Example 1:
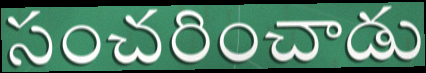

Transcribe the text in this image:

సంచరించాడు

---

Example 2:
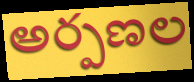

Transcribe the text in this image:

అర్పణల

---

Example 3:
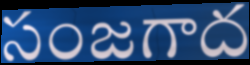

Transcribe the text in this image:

సంజగాద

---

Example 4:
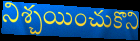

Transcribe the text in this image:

నిశ్చయించుకొని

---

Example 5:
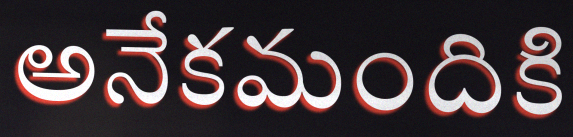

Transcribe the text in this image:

అనేకమందికి